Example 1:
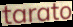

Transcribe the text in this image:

tarato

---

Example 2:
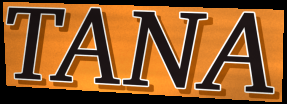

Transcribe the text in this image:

TANA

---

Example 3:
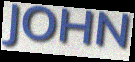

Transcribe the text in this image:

JOHN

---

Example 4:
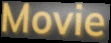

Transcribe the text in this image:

Movie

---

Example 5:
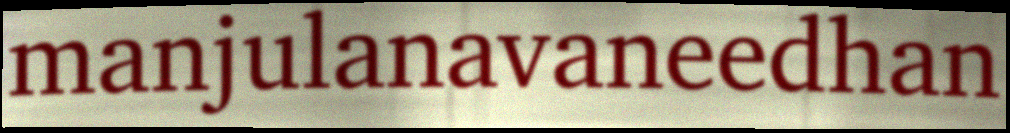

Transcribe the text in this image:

manjulanavaneedhan